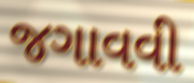
જગાવવી